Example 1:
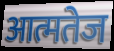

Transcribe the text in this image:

आत्मतेज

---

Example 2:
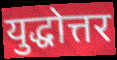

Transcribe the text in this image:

युद्धोत्तर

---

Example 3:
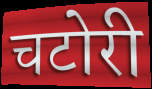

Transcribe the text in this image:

चटोरी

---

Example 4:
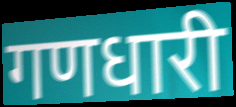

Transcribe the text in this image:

गणधारी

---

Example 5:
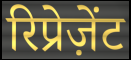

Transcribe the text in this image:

रिप्रेज़ेंट